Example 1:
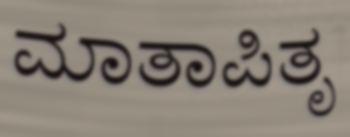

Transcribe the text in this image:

ಮಾತಾಪಿತೃ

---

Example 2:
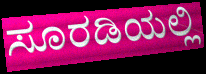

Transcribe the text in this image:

ಸೂರಡಿಯಲ್ಲಿ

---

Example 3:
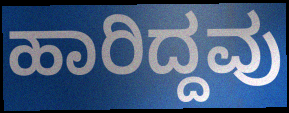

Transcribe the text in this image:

ಹಾರಿದ್ದವು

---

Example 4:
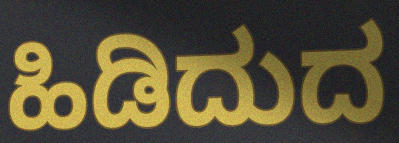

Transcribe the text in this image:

ಹಿಡಿದುದ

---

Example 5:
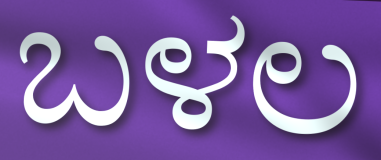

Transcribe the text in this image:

ಬಳಲ